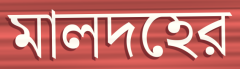
মালদহের